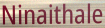
Ninaithale